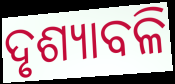
ଦୃଶ୍ୟାବଳି